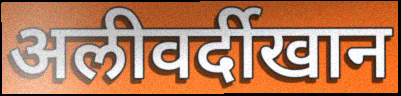
अलीवर्दीखान